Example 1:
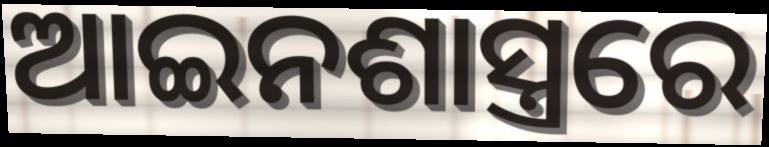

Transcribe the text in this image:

ଆଇନଶାସ୍ତ୍ରରେ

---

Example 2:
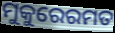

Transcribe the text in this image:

ମୁକୁରେରମତ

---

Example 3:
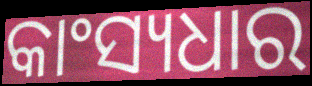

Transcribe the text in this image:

କାଂସ୍ୟଧାର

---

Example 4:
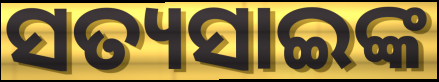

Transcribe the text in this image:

ସତ୍ୟସାଇଙ୍କ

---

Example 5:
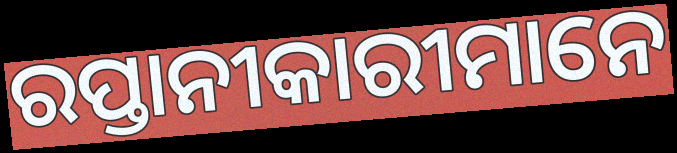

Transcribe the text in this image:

ରପ୍ତାନୀକାରୀମାନେ